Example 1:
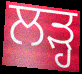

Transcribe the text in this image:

ਲੜ੍ਹ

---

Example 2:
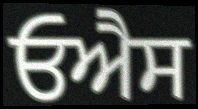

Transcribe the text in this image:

ਓਐਸ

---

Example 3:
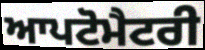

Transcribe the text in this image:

ਆਪਟੋਮੈਟਰੀ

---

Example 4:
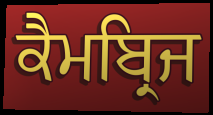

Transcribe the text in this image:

ਕੈਮਬ੍ਰਿਜ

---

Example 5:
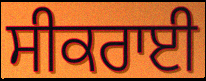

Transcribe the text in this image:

ਸੀਕਰਾਈ